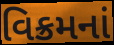
વિક્રમનાં